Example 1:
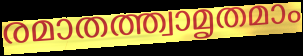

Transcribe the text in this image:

രമാതത്ത്വാമൃതമാം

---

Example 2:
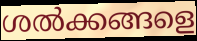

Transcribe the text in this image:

ശൽക്കങ്ങളെ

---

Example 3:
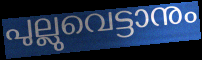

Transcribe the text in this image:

പുല്ലുവെട്ടാനും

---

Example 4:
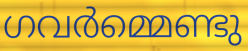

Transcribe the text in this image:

ഗവർമ്മെണ്ടു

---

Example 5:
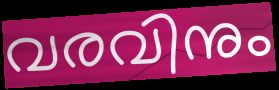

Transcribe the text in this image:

വരവിനും